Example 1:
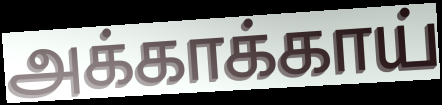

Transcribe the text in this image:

அக்காக்காய்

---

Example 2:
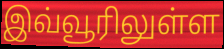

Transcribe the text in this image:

இவ்வூரிலுள்ள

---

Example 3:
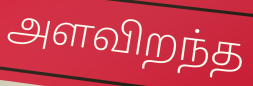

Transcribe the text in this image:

அளவிறந்த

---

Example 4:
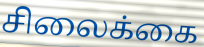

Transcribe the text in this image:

சிலைக்கை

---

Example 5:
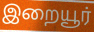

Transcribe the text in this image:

இறையூர்